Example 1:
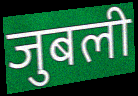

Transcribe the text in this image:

जुबली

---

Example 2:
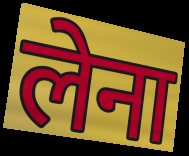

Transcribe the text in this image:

लेना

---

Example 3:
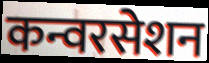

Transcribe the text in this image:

कन्वरसेशन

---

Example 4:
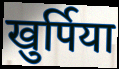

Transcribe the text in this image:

खुर्पिया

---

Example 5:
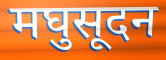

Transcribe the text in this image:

मघुसूदन